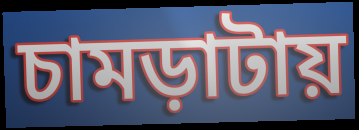
চামড়াটায়